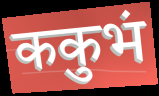
ककुभं